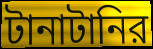
টানাটানির